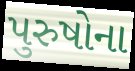
પુરુષોના